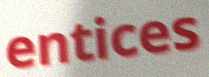
entices